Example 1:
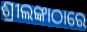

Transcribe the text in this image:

ଶ୍ରୀଲଙ୍କାଠାରେ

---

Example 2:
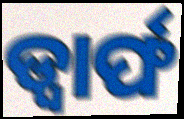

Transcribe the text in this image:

ଡ୍ୱାର୍ଫ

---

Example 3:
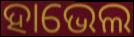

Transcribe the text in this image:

ହାଭେଲ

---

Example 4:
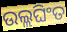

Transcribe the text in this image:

ଉଲ୍ଲଘିଂତ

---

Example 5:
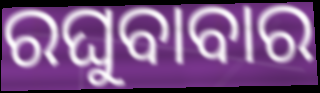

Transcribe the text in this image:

ରଘୁବାବାର